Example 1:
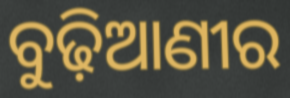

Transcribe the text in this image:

ବୁଢ଼ିଆଣୀର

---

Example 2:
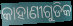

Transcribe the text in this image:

କାହାଣୀଗୁଡିକ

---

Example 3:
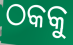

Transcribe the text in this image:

ଠକକୁ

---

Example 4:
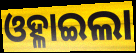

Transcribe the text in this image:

ଓହ୍ଳାଇଲା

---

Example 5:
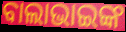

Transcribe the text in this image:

ବାଲାଭାଇଙ୍କ